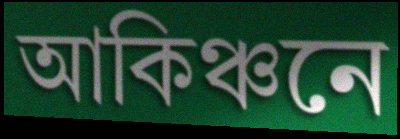
আকিঞ্চনে